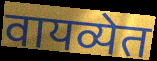
वायव्येत